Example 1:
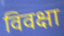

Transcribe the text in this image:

विवक्षा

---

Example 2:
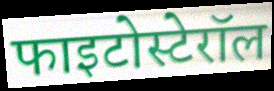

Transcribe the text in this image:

फाइटोस्टेरॉल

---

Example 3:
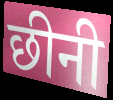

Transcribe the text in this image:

छीनी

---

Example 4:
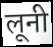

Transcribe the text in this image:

लूनी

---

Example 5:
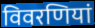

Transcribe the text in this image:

विवरणियां